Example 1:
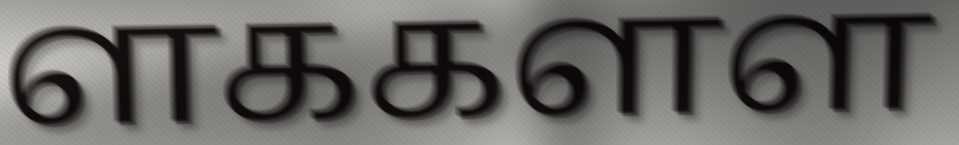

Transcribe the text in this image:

ளககளள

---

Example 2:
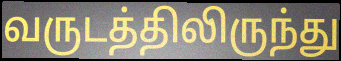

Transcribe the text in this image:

வருடத்திலிருந்து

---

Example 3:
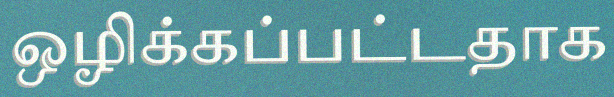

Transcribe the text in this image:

ஒழிக்கப்பட்டதாக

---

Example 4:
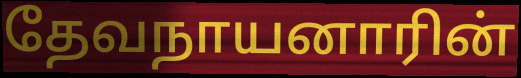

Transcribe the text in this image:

தேவநாயனாரின்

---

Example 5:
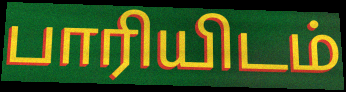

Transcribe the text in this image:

பாரியிடம்